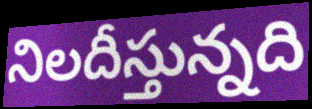
నిలదీస్తున్నది